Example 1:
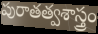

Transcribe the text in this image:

పురాతత్వశాస్త్రం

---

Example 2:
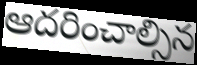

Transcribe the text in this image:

ఆదరించాల్సిన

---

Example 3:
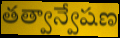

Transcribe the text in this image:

తత్వాన్వేషణ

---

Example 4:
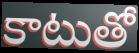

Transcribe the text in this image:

కాటుతో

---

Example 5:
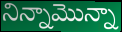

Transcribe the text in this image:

నిన్నామొన్నా